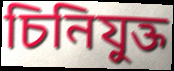
চিনিযুক্ত